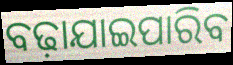
ବଢ଼ାଯାଇପାରିବ